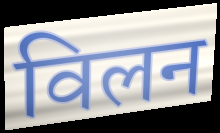
विलन